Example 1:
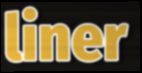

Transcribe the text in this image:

liner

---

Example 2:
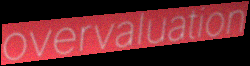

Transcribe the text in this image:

overvaluation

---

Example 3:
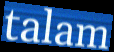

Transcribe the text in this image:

talam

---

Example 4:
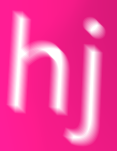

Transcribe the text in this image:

hj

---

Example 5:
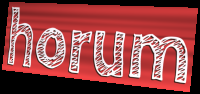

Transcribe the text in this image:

horum